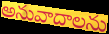
అనువాదాలను